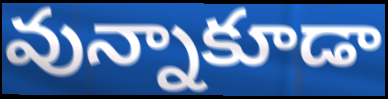
వున్నాకూడా